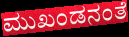
ಮುಖಂಡನಂತೆ